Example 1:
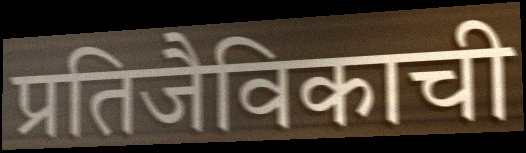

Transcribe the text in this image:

प्रतिजैविकाची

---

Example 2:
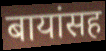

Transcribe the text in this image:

बायांसह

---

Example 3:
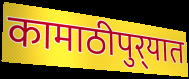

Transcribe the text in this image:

कामाठीपुर्‍यात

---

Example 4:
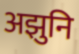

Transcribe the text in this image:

अझुनि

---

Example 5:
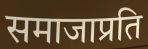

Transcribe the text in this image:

समाजाप्रति